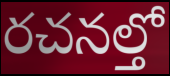
రచనల్తో